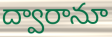
ద్వారానూ